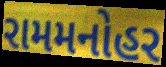
રામમનોહર